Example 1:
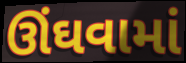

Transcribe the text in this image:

ઊંઘવામાં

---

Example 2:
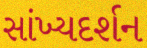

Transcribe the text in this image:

સાંખ્યદર્શન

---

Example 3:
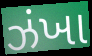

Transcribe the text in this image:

ઝંખા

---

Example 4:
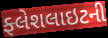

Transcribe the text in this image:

ફ્લેશલાઇટની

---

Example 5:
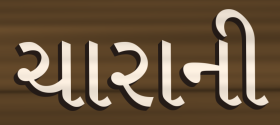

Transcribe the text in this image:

ચારાની